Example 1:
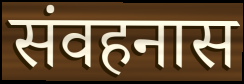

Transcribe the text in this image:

संवहनास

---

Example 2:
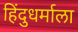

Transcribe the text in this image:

हिंदुधर्माला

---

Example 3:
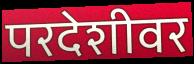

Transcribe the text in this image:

परदेशीवर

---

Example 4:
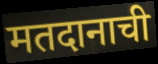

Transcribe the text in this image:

मतदानाची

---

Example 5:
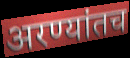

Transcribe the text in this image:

अरण्यांतच